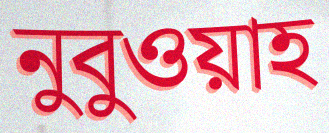
নুবুওয়াহ